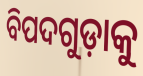
ବିପଦଗୁଡ଼ାକୁ